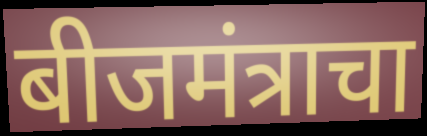
बीजमंत्राचा